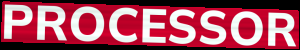
PROCESSOR